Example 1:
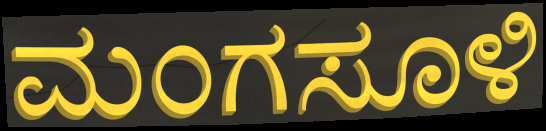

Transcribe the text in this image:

ಮಂಗಸೂಳಿ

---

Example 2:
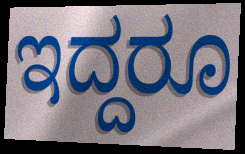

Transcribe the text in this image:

ಇದ್ದರೂ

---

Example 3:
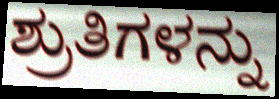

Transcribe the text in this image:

ಶ್ರುತಿಗಳನ್ನು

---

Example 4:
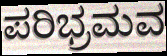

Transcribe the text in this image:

ಪರಿಭ್ರಮವ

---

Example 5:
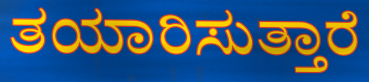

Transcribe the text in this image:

ತಯಾರಿಸುತ್ತಾರೆ